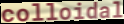
colloidal